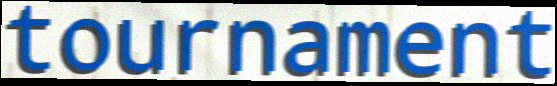
tournament